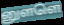
னுளளெ